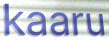
kaaru